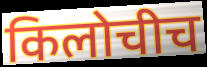
किलोचीच